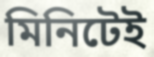
মিনিটেই